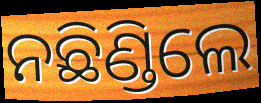
ନଛିଣ୍ଡିଲେ